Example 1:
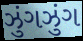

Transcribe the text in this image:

ઝુંગઝુંગ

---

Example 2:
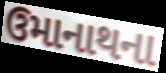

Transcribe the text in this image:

ઉમાનાથના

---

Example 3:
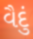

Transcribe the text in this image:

વૈદું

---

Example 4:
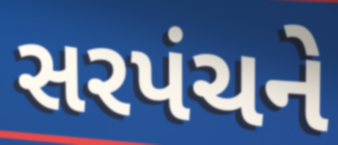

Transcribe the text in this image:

સરપંચને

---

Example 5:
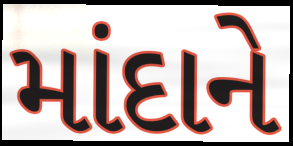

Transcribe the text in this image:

માંદાને